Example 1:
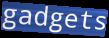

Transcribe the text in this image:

gadgets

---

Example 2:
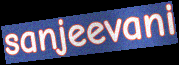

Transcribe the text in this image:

sanjeevani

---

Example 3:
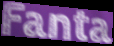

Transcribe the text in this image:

Fanta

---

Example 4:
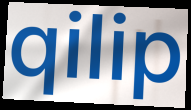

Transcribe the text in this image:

qilip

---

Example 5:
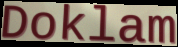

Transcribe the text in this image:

Doklam